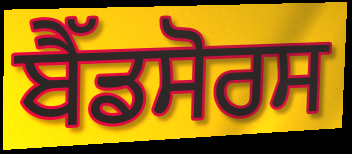
ਬੈੱਡਸੋਰਸ